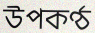
উপকণ্ঠ